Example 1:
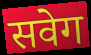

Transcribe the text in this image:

सवेग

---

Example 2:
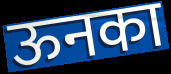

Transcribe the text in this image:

ऊनका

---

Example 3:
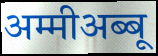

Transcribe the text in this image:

अम्मीअब्बू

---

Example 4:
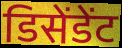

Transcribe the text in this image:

डिसेंडेंट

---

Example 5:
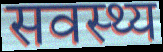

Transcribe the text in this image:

सवस्थ्य